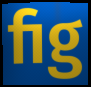
fig